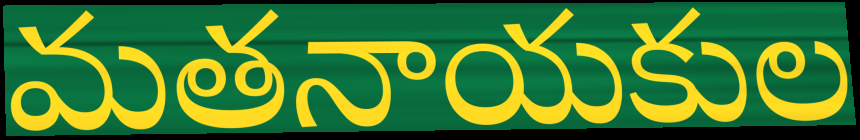
మతనాయకుల